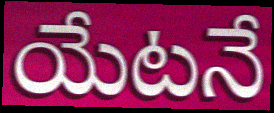
యేటనే